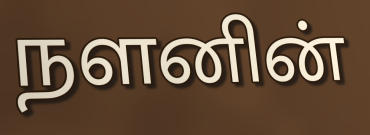
நளனின்